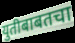
युतीबाबतचा